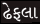
ઢેફલા